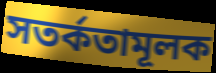
সতর্কতামূলক